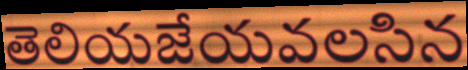
తెలియజేయవలసిన